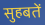
सुहबतें